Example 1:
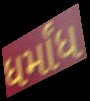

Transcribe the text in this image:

ધર્માંધ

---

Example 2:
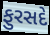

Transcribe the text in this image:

ફુરસદે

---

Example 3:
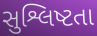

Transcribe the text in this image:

સુશ્લિષ્ટતા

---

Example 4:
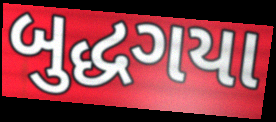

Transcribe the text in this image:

બુદ્ધગયા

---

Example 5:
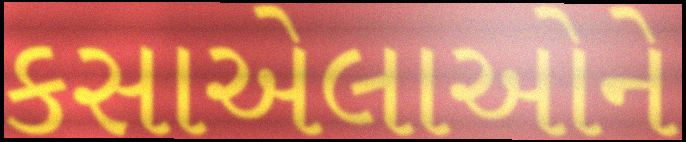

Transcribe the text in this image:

કસાએલાઓને